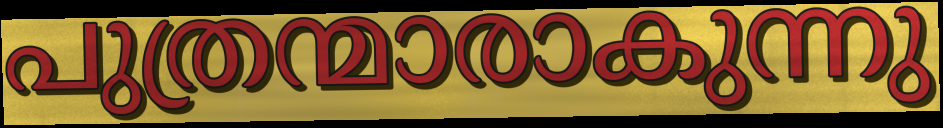
പുത്രന്മാരാകുന്നു